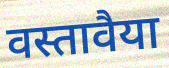
वस्तावैया